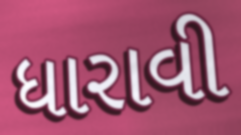
ધારાવી